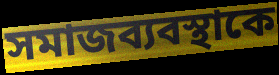
সমাজব্যবস্থাকে